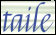
taile